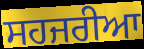
ਸਹਜਰੀਆ